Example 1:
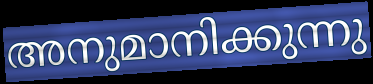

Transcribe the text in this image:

അനുമാനിക്കുന്നു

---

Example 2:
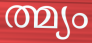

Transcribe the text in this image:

ത്മ്യം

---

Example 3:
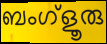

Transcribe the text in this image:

ബംഗ്ളൂരു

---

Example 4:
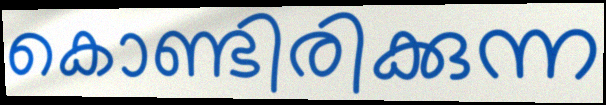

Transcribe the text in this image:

കൊണ്ടിരിക്കുന്ന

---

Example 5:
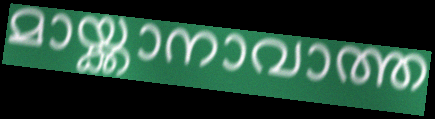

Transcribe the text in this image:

മായ്ക്കാനാവാത്ത